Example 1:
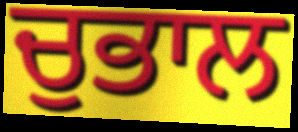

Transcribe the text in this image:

ਚੁਭਾਲ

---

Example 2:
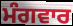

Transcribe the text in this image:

ਮੰਗਵਾਰ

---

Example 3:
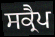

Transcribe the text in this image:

ਸਕ੍ਰੈਪ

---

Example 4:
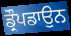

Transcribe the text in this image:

ਡ੍ਰੌਪਡਾਉਨ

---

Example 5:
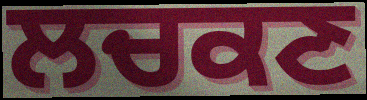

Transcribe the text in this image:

ਲਚਕਣ